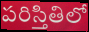
పరిస్తితిలో